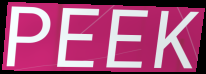
PEEK